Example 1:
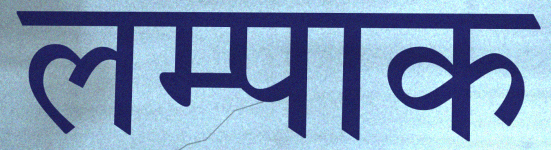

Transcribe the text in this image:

लम्पाक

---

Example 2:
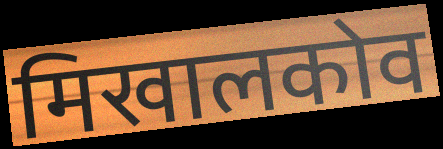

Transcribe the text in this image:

मिखालकोव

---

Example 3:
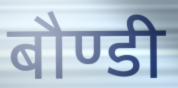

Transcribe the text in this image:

बौण्डी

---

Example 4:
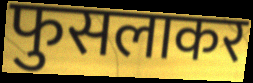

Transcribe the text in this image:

फुसलाकर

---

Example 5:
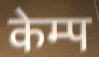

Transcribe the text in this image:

केम्प